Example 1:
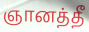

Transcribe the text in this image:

ஞானத்தீ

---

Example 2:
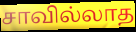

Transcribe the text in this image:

சாவில்லாத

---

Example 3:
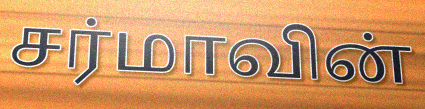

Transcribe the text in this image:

சர்மாவின்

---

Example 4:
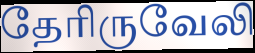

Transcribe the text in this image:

தேரிருவேலி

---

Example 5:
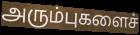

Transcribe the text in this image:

அரும்புகளைச்